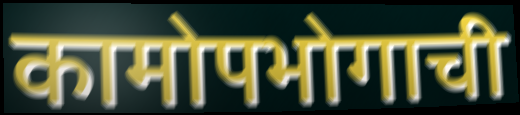
कामोपभोगाची